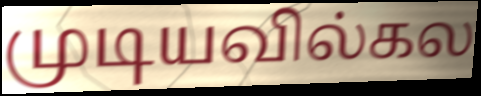
முடியவில்கல